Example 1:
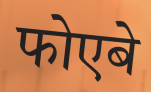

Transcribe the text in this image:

फोएबे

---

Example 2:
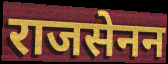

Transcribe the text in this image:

राजसेनन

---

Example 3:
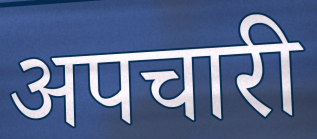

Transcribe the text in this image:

अपचारी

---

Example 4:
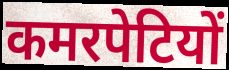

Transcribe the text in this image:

कमरपेटियों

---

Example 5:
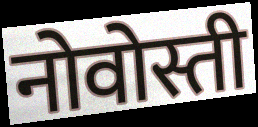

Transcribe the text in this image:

नोवोस्ती